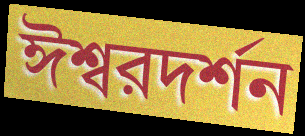
ঈশ্বরদর্শন